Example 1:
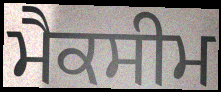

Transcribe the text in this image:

ਮੈਕਸੀਮ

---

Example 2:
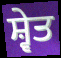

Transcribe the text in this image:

ਸ਼੍ਵੇਤ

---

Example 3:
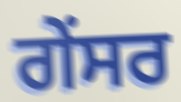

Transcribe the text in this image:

ਗੇਂਸਰ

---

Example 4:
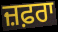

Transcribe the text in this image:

ਜ਼ਫ਼ਰਾ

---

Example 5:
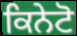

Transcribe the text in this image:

ਕਿਨੇਟੋ